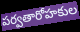
పర్వతారోహకుల